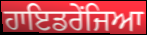
ਹਾਇਡਰੇਂਜਿਆ